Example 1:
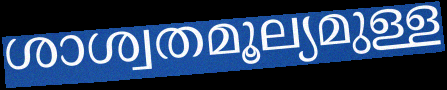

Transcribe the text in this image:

ശാശ്വതമൂല്യമുള്ള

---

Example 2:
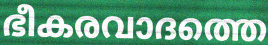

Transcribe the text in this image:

ഭീകരവാദത്തെ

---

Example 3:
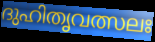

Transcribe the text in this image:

ദുഹിതൃവത്സലഃ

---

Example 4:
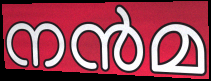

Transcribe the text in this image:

നൻമ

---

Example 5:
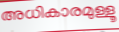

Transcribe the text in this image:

അധികാരമുള്ളൂ